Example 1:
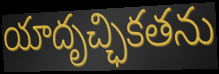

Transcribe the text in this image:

యాదృచ్ఛికతను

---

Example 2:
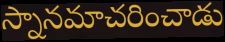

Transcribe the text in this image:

స్నానమాచరించాడు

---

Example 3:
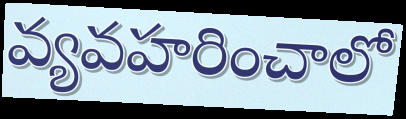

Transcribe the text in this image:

వ్యవహరించాలో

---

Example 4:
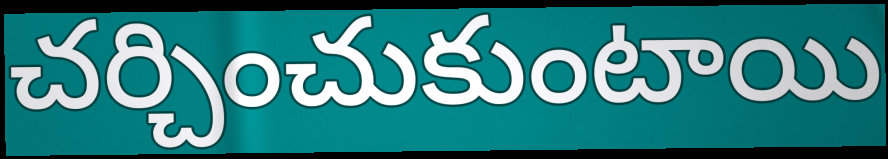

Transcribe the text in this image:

చర్చించుకుంటాయి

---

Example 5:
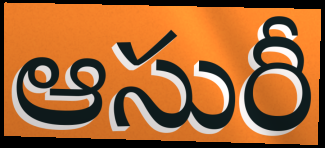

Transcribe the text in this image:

ఆసురీ